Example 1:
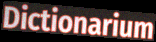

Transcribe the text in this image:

Dictionarium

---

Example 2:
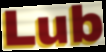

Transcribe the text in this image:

Lub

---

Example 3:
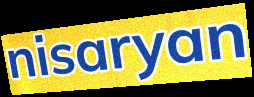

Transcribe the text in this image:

nisaryan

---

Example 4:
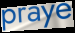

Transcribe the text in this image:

praye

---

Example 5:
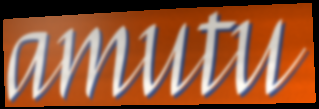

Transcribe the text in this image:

amutu